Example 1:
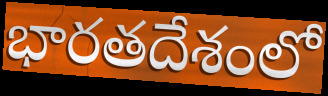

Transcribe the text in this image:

భారతదేశంలో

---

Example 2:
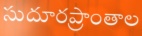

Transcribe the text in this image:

సుదూరప్రాంతాల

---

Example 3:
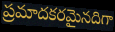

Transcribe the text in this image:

ప్రమాదకరమైనదిగా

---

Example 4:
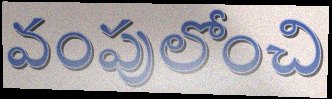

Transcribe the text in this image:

వంపులోంచి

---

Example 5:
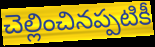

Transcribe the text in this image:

చెల్లించినప్పటికీ